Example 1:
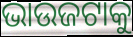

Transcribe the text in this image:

ଭାଉଜଟାକୁ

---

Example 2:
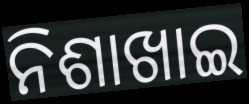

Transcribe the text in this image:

ନିଶାଖାଇ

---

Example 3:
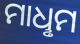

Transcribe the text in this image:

ମାଧୢମ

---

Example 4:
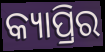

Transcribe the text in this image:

କ୍ୟାପ୍ରିର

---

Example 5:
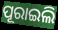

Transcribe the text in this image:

ପୂରାଇଲି